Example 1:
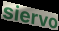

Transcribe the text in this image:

siervo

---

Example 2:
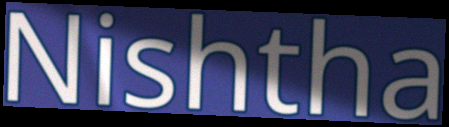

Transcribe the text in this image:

Nishtha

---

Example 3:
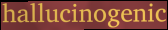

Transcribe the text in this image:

hallucinogenic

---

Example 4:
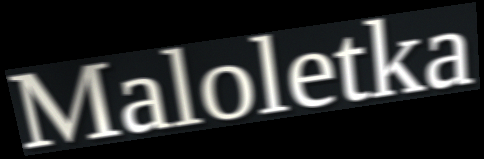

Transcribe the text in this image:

Maloletka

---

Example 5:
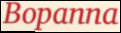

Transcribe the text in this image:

Bopanna